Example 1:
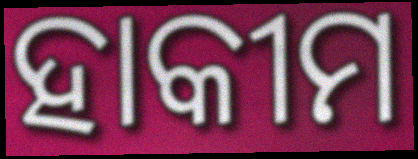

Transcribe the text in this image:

ହାକୀମ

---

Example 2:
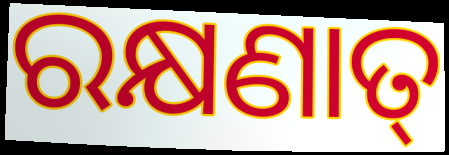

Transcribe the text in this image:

ରକ୍ଷଣାତ୍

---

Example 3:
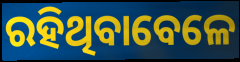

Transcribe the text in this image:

ରହିଥିବାବେଳେ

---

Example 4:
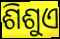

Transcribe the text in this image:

ଶିଶୁଏ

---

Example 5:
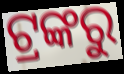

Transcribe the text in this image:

ଟ୍ରଙ୍କରୁ